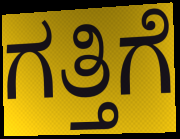
ಗತ್ತಿಗೆ